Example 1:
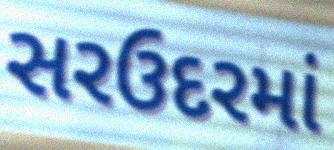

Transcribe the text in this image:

સરઉદરમાં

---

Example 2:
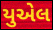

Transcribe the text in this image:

યુએલ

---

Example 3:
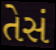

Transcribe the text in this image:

તેસં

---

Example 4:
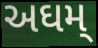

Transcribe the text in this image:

અઘમ્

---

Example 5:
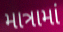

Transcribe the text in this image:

માત્રામાં